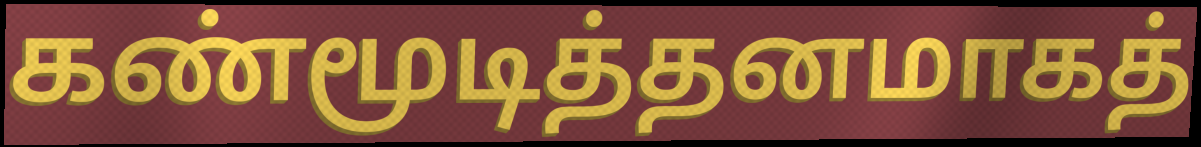
கண்மூடித்தனமாகத்